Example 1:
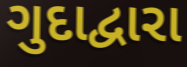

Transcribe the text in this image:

ગુદાદ્વારા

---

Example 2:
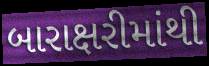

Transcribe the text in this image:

બારાક્ષરીમાંથી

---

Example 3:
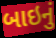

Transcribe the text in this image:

બાઇનું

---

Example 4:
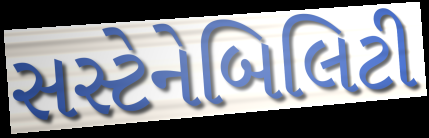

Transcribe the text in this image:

સસ્ટેનેબિલિટી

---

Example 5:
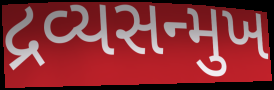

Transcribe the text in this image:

દ્રવ્યસન્મુખ